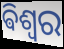
ଵିଶ୍ୱର